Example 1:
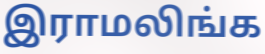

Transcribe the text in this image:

இராமலிங்க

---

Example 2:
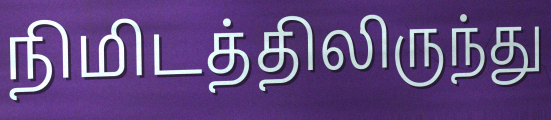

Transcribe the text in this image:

நிமிடத்திலிருந்து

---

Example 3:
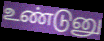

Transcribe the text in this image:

உண்டுனு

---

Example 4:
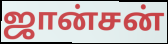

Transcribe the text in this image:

ஜான்சன்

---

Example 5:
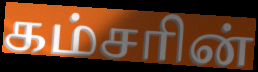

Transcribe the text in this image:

கம்சரின்